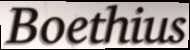
Boethius